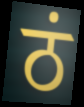
ठं